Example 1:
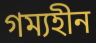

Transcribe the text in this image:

গম্যহীন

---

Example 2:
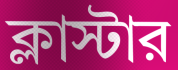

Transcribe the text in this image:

ক্লাস্টার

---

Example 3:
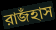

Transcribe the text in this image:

রাজঁহাস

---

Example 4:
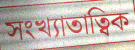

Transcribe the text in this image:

সংখ্যাতাত্বিক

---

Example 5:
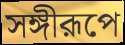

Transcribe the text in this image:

সঙ্গীরূপে